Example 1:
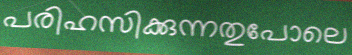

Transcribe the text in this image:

പരിഹസിക്കുന്നതുപോലെ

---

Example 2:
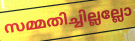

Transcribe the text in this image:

സമ്മതിച്ചില്ലല്ലോ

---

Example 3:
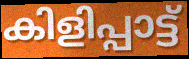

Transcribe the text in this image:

കിളിപ്പാട്ട്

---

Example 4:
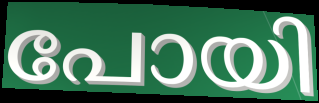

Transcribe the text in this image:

പോയി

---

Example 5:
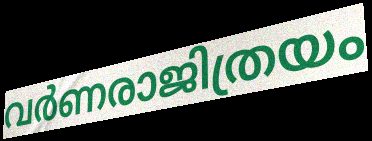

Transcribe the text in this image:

വർണരാജിത്രയം